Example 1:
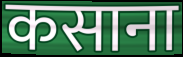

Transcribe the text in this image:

कसाना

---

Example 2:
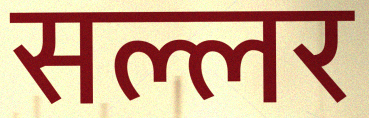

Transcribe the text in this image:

सल्लर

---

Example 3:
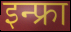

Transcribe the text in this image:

इन्फ्रा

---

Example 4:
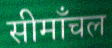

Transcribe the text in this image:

सीमाँचल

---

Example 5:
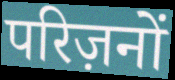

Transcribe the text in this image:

परिज़नों